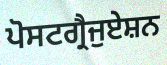
ਪੋਸਟਗ੍ਰੈਜੁਏਸ਼ਨ